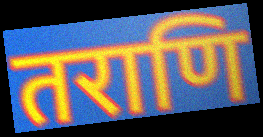
तराणि